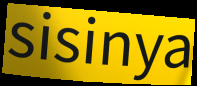
sisinya